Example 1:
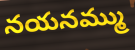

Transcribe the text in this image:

నయనమ్ము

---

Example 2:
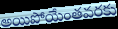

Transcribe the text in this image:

అయిపోయేంతవరకు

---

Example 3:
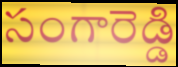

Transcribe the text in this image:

సంగారెడ్డి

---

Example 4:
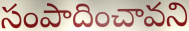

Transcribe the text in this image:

సంపాదించావని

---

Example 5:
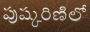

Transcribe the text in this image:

పుష్కరిణిలో